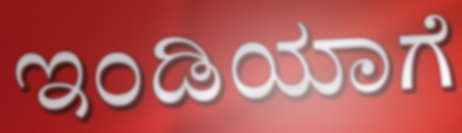
ಇಂಡಿಯಾಗೆ